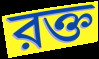
রক্ত